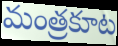
మంత్రకూట